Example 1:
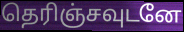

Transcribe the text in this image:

தெரிஞ்சவுடனே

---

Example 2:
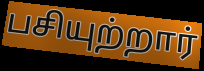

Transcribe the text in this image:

பசியுற்றார்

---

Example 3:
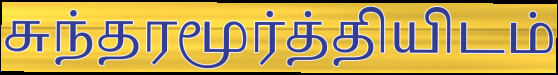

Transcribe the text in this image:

சுந்தரமூர்த்தியிடம்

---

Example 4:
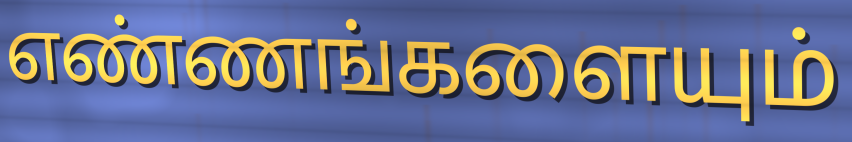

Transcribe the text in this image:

எண்ணங்களையும்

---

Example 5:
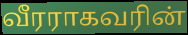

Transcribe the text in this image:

வீரராகவரின்